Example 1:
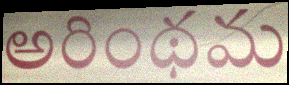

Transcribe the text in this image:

అరింథమ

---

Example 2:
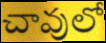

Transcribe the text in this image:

చావులో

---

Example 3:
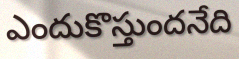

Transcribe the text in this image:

ఎందుకొస్తుందనేది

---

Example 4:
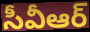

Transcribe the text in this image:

సీవీఆర్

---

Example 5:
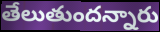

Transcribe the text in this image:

తేలుతుందన్నారు